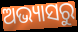
ଅଭ୍ୟାସରୁ